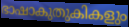
ഭാഷാകുതുകികളും